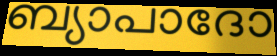
ബ്യാപാദോ